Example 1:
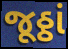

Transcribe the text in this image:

જૂઠ્ઠાં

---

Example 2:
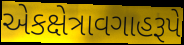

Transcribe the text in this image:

એકક્ષેત્રાવગાહરૂપે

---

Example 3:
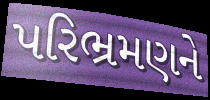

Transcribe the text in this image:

પરિભ્રમણને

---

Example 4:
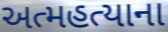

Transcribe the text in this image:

અત્મહત્યાના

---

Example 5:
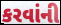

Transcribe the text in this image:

કરવાંની